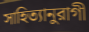
সাহিত্যানুরাগী